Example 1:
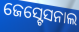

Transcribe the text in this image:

ଜେସ୍ଟେସନାଲ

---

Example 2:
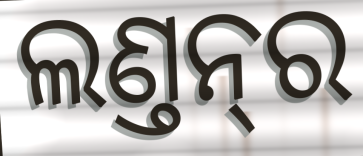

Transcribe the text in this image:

ଲଣ୍ତନ୍‌ର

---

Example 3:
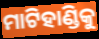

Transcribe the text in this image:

ମାଟିହାଣ୍ଡିକୁ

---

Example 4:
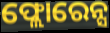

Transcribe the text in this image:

ଫ୍ଲୋରେନ୍ସ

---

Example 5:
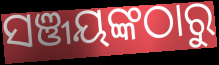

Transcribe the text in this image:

ସଞ୍ଜୟଙ୍କଠାରୁ